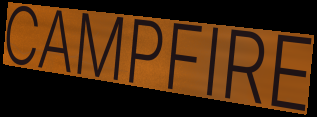
CAMPFIRE